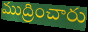
ముద్రించారు